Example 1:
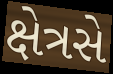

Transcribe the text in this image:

ક્ષેત્રસે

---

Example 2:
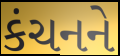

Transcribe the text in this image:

કંચનને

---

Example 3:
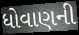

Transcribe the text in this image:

ધોવાણની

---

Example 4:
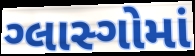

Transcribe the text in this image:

ગ્લાસ્ગોમાં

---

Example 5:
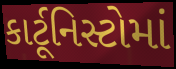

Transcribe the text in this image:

કાર્ટૂનિસ્ટોમાં